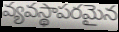
వ్యవస్థాపరమైన